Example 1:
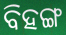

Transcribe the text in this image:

ବିହଙ୍ଗ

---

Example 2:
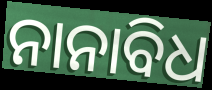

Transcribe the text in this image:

ନାନାବିଧ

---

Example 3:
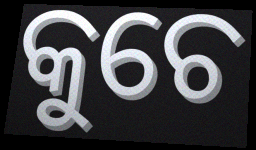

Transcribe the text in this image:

କୁଚେ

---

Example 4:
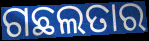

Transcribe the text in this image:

ଗଛଲତାର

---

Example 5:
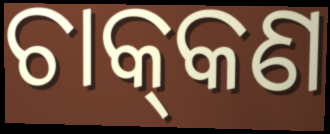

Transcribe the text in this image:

ଚାକ୍‌କଣ